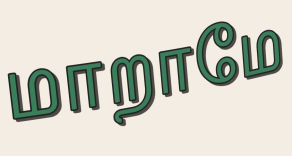
மாறாமே